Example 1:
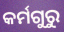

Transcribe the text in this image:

କର୍ମଗୁରୁ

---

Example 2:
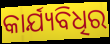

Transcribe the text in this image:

କାର୍ଯ୍ୟବିଧିର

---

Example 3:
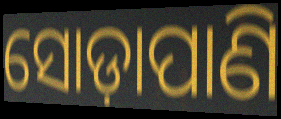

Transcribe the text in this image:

ସୋଡ଼ାପାଣି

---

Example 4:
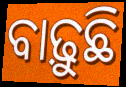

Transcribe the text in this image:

ବାଢ଼ୁଛି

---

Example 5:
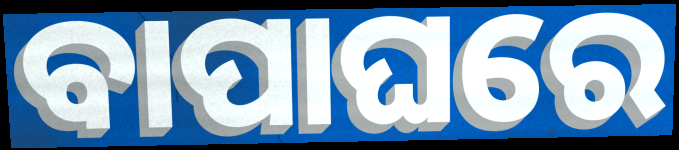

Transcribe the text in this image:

ବାପାଘରେ